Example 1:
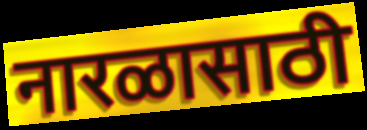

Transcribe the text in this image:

नारळासाठी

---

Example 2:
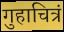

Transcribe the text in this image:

गुहाचित्रं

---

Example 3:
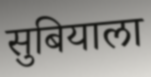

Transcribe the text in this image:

सुबियाला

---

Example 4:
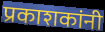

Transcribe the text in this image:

प्रकाशकांनी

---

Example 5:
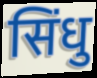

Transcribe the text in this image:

सिंधु